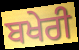
ਬਖੇਰੀ